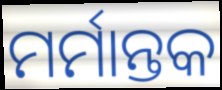
ମର୍ମାନ୍ତକ